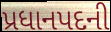
પ્રધાનપદની